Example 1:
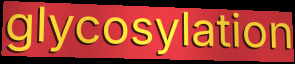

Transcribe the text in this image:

glycosylation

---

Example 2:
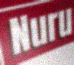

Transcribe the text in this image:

Nuru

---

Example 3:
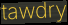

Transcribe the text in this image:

tawdry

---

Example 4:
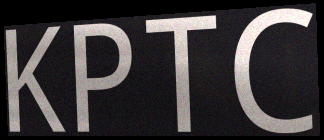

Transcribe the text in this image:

KPTC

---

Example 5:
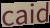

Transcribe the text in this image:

caid